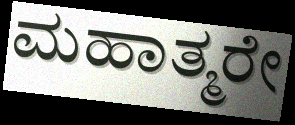
ಮಹಾತ್ಮರೇ